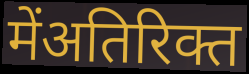
मेंअतिरिक्त